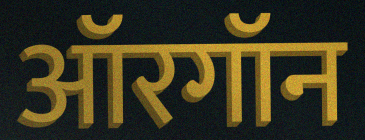
ऑरगॉन